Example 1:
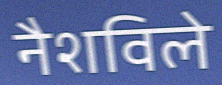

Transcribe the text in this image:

नैशविले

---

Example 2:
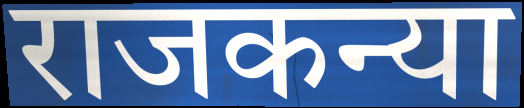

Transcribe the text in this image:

राजकन्या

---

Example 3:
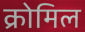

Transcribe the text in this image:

क्रोमिल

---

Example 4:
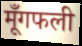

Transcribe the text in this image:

मूँगफली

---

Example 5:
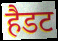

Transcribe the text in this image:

हैडट